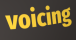
voicing